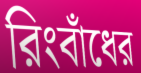
রিংবাঁধের